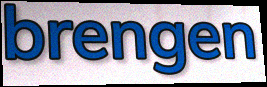
brengen